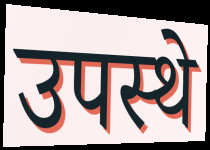
उपस्थे